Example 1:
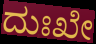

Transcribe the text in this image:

ದುಃಖೇ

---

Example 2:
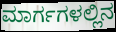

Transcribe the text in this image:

ಮಾರ್ಗಗಳಲ್ಲಿನ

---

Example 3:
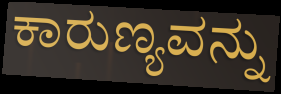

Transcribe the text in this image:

ಕಾರುಣ್ಯವನ್ನು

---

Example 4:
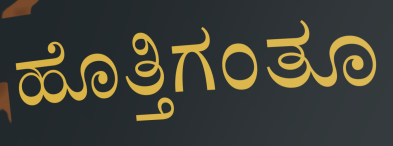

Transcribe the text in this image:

ಹೊತ್ತಿಗಂತೂ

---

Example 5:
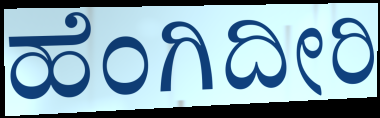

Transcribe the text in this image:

ಹೆಂಗಿದೀರಿ